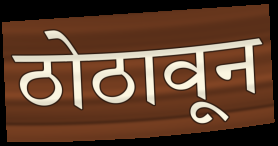
ठोठावून